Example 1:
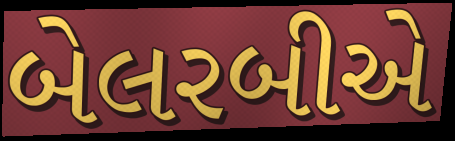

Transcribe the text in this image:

બેલરબીએ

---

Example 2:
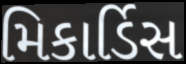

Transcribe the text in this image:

મિકાર્ડિસ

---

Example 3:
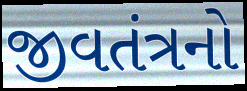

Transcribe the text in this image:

જીવતંત્રનો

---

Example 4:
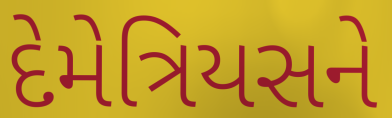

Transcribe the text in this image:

દેમેત્રિયસને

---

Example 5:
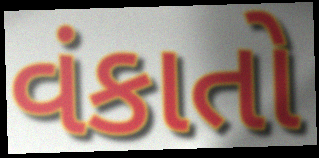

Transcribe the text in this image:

વંકાતો